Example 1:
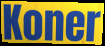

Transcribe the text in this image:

Koner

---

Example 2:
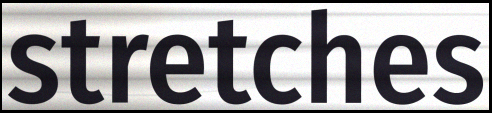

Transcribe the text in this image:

stretches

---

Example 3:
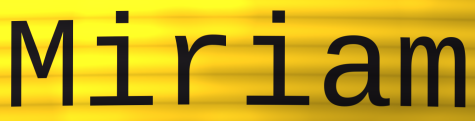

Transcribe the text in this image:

Miriam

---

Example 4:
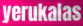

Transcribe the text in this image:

yerukalas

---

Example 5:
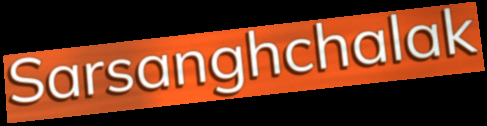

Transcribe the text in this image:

Sarsanghchalak